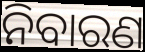
ନିବାରଣ